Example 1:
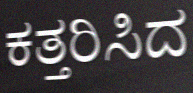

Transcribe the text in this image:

ಕತ್ತರಿಸಿದ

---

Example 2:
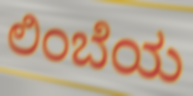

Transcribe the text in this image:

ಲಿಂಬೆಯ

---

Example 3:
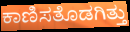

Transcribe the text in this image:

ಕಾಣಿಸತೊಡಗಿತ್ತು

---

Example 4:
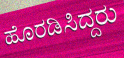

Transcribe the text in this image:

ಹೊರಡಿಸಿದ್ದರು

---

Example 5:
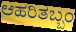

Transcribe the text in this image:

ಆಹರಿತಬ್ಬಂ